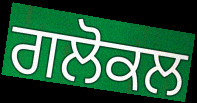
ਗਲੋਕਲ